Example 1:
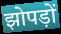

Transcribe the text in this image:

झोपड़ों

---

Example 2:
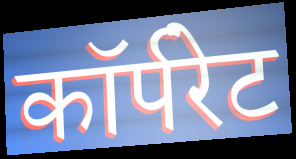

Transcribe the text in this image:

कॉर्परेट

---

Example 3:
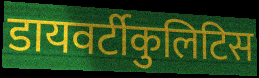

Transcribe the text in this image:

डायवर्टीकुलिटिस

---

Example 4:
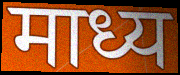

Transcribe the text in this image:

माध्य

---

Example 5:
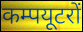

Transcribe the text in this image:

कम्पयूटरों